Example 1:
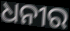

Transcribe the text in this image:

ଧନୀର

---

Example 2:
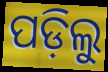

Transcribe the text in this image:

ପଡ଼ିଲୁ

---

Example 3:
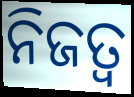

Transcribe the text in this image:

ନିଜତ୍ବ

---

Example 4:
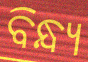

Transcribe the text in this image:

ବିନ୍ଧ୍ୟ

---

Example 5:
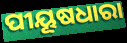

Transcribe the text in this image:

ପୀୟୂଷଧାରା